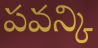
పవన్కి